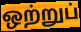
ஒற்றுப்